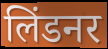
लिंडनर